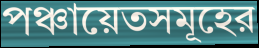
পঞ্চায়েতসমূহের